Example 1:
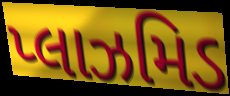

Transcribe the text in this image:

પ્લાઝમિડ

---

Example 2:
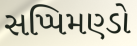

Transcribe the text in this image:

સપ્પિમણ્ડો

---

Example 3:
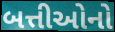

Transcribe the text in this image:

બત્તીઓનો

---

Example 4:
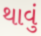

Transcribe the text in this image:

થાવું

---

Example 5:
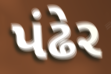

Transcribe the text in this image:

પંઢેર